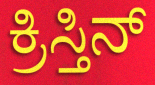
ಕ್ರಿಸ್ತಿನ್